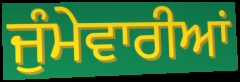
ਜੁੰਮੇਵਾਰੀਆਂ